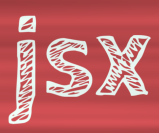
jsx